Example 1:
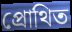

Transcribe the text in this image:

প্রোথিত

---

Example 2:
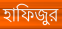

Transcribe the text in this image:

হাফিজুর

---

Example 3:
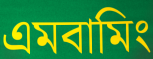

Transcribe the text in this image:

এমবামিং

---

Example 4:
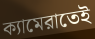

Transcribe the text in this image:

ক্যামেরাতেই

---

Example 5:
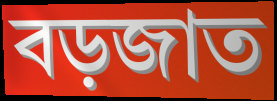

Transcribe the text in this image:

বড়জাত